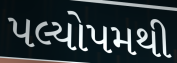
પલ્યોપમથી